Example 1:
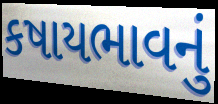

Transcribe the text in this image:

કષાયભાવનું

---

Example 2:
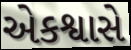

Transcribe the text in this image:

એકશ્વાસે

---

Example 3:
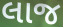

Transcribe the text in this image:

લાજ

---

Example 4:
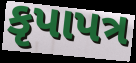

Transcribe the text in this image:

કૃપાપત્ર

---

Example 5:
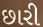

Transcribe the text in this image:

છારી